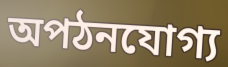
অপঠনযোগ্য